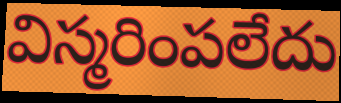
విస్మరింపలేదు